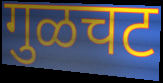
गुळचट